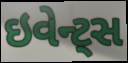
ઇવેન્ટ્સ